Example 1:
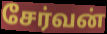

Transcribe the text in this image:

சேர்வன்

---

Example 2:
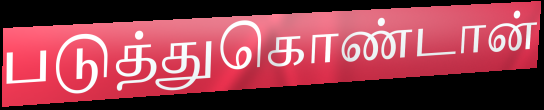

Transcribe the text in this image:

படுத்துகொண்டான்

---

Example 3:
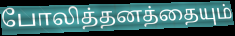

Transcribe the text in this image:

போலித்தனத்தையும்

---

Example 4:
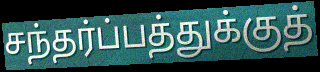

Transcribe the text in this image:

சந்தர்ப்பத்துக்குத்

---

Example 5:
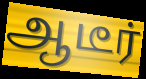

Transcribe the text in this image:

ஆடீர்